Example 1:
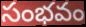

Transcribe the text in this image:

సంభవం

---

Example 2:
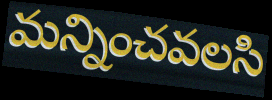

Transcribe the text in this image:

మన్నించవలసి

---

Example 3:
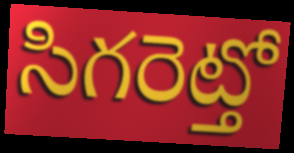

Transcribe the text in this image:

సిగరెట్తో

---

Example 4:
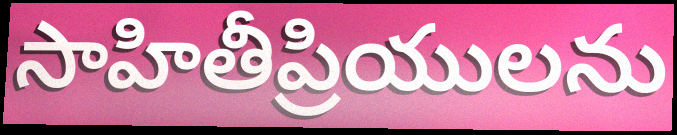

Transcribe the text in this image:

సాహితీప్రియులను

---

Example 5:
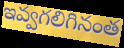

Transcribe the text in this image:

ఇవ్వగలిగినంత